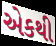
એકથી